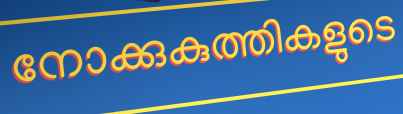
നോക്കുകുത്തികളുടെ